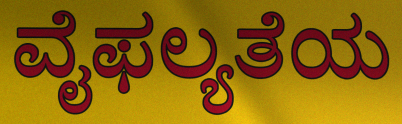
ವೈಫಲ್ಯತೆಯ